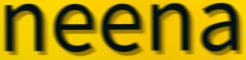
neena